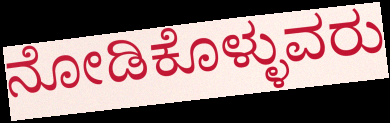
ನೋಡಿಕೊಳ್ಳುವರು